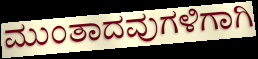
ಮುಂತಾದವುಗಳಿಗಾಗಿ